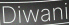
Diwani